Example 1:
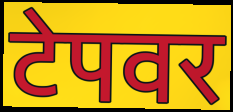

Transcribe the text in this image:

टेपवर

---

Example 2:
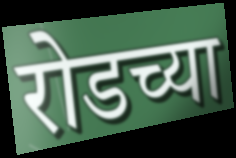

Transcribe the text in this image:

रोडच्या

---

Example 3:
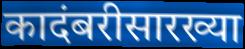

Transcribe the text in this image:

कादंबरीसारख्या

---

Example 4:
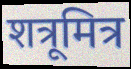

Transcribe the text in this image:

शत्रूमित्र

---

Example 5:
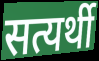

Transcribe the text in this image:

सत्यर्थी